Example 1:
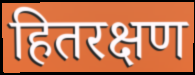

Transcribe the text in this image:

हितरक्षण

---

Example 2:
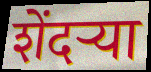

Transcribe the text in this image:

शेंदर्‍या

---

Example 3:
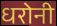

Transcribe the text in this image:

धरोनी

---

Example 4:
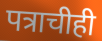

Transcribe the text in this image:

पत्राचीही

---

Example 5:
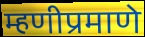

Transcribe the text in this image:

म्हणीप्रमाणे